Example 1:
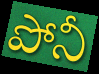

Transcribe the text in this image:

పోనీ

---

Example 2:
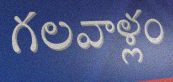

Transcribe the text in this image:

గలవాళ్లం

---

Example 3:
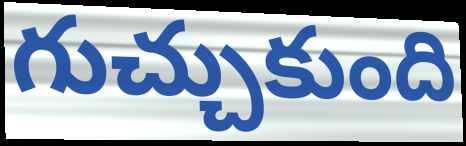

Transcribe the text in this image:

గుచ్చుకుంది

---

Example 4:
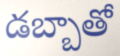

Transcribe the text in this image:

డబ్బాతో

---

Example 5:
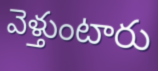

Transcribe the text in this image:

వెళ్తుంటారు